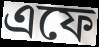
এফে